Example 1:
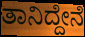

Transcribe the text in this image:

ತಾನಿದ್ದೇನೆ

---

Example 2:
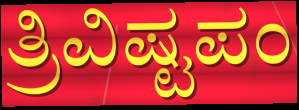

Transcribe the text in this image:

ತ್ರಿವಿಷ್ಟಪಂ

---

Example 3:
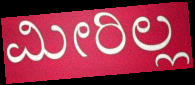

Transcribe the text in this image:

ಮೀರಿಲ್ಲ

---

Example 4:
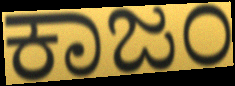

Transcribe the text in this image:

ಕಾಜಂ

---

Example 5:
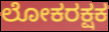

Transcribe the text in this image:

ಲೋಕರಕ್ಷಕ